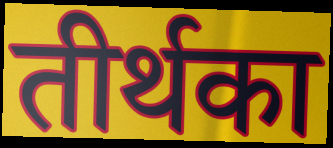
तीर्थका